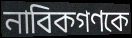
নাবিকগণকে